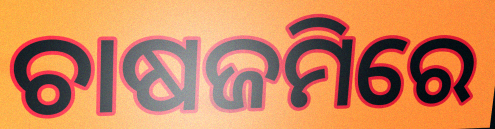
ଚାଷଜମିରେ